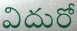
విదురో